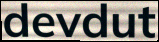
devdut